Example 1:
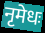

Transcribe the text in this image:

नृमेधः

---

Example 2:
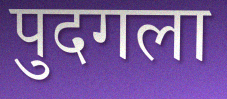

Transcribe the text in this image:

पुदगला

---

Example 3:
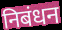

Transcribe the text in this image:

निबंधन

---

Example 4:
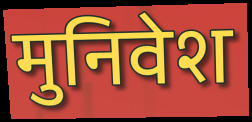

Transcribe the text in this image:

मुनिवेश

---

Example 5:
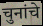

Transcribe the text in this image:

चुनांचे